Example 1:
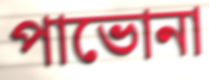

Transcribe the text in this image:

পাভোনা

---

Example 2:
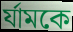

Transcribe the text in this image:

র্যামকে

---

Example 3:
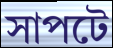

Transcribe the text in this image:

সাপটে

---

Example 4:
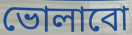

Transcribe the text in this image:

ভোলাবো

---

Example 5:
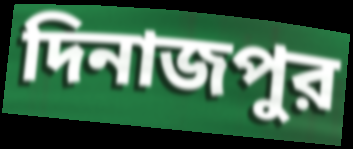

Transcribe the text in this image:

দিনাজপুর